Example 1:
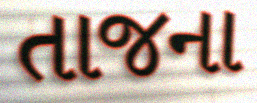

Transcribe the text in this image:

તાજના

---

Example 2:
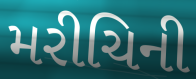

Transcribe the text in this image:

મરીચિની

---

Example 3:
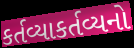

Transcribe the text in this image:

કર્તવ્યાકર્તવ્યનો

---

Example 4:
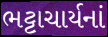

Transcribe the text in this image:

ભટ્ટાચાર્યનાં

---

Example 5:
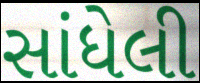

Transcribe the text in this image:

સાંધેલી